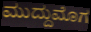
ಮುದ್ದುಮೊಗ